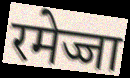
रमेज्जा